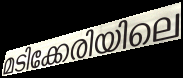
മടിക്കേരിയിലെ